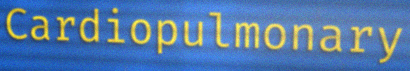
Cardiopulmonary